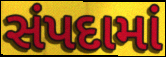
સંપદામાં